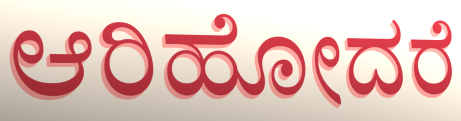
ಆರಿಹೋದರೆ